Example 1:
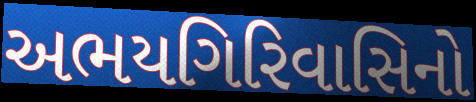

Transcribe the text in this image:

અભયગિરિવાસિનો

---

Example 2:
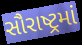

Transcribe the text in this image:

સૌરાષ્ટ્રમાં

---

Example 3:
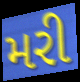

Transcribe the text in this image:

મરી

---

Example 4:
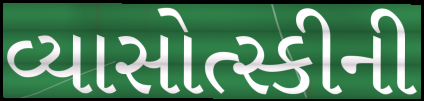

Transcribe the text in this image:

વ્યાસોત્સ્કીની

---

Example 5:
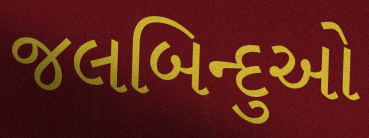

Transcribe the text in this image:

જલબિન્દુઓ